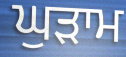
ਘੁੜਾਮ